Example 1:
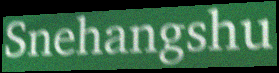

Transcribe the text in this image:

Snehangshu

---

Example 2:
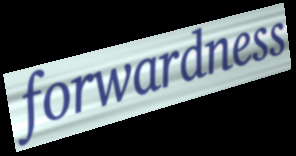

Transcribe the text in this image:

forwardness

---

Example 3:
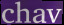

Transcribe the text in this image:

chav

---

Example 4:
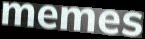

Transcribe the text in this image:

memes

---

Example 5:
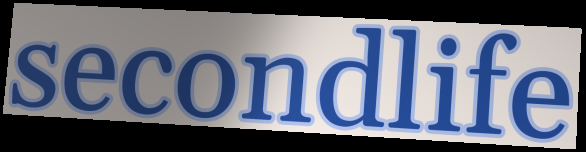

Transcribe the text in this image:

secondlife